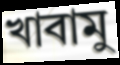
খাবামু